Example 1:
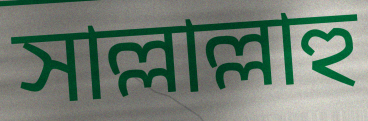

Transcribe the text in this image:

সাল্লাল্লাহু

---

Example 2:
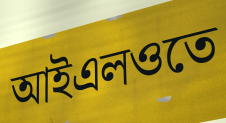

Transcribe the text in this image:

আইএলওতে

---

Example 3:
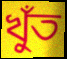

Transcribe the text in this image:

খুঁত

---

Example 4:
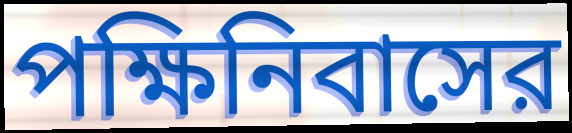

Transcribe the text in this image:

পক্ষিনিবাসের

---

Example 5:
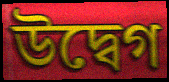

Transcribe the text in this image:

উদ্বেগ